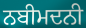
ਨਬੀਮਦਨੀ